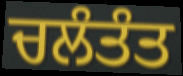
ਚਲੰਤੰਤ